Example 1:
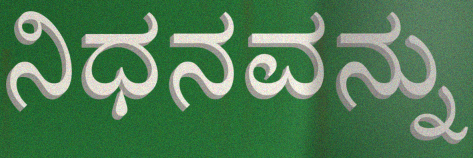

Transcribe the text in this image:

ನಿಧನವನ್ನು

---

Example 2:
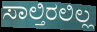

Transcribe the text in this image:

ಸಾಲ್ತಿರಲಿಲ್ಲ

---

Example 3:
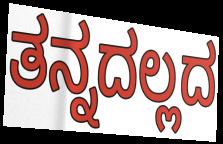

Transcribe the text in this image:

ತನ್ನದಲ್ಲದ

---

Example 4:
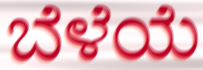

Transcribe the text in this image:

ಬೆಳೆಯೆ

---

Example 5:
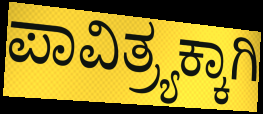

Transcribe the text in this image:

ಪಾವಿತ್ರ್ಯಕ್ಕಾಗಿ